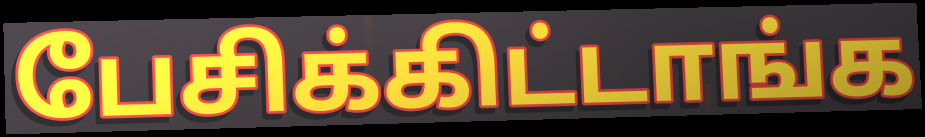
பேசிக்கிட்டாங்க